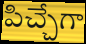
పిచ్చేగా